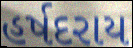
હર્ષદરાય